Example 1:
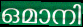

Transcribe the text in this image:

ഒമാനി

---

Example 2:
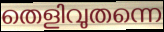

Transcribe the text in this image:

തെളിവുതന്നെ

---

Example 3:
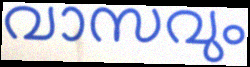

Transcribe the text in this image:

വാസവും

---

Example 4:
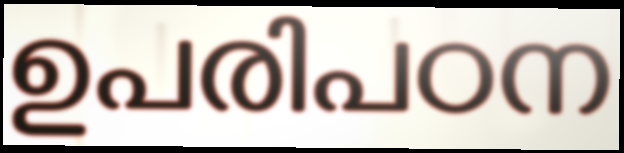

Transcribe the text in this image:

ഉപരിപഠന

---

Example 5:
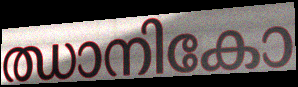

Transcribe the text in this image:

ഝാനികോ